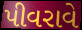
પીવરાવે